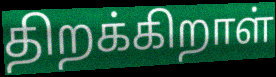
திறக்கிறாள்